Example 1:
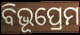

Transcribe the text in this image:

ବିଭୂପ୍ରେମ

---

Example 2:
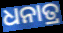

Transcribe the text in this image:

ଧନାତ୍ର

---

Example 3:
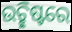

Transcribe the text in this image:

ଉଚ୍ଛିଷ୍ଟରେ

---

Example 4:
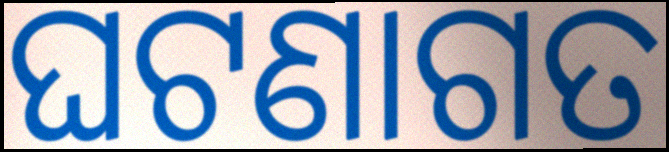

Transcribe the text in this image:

ଘଟଣାଗତ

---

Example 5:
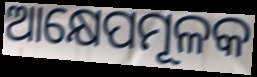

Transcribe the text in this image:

ଆକ୍ଷେପମୂଳକ